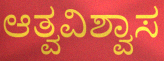
ಆತ್ವವಿಶ್ವಾಸ